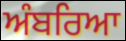
ਅੰਬਰਿਆ